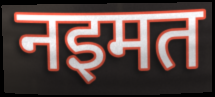
नइमत